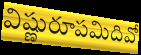
విష్ణురూపమిదివో